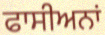
ਫਾਸੀਅਨਾਂ